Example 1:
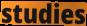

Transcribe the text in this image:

studies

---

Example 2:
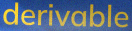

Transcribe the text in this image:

derivable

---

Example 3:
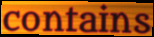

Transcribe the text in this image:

contains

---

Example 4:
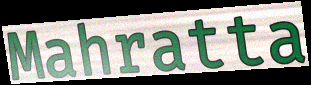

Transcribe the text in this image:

Mahratta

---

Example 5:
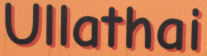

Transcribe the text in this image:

Ullathai